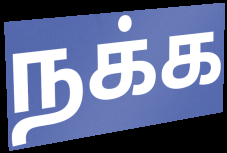
நக்க